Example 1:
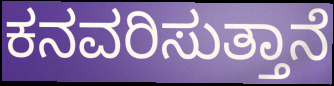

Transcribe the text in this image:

ಕನವರಿಸುತ್ತಾನೆ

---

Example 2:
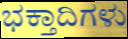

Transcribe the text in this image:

ಭಕ್ತಾದಿಗಳು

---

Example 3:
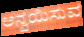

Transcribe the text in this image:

ಅನ್ವಯಿಸುವ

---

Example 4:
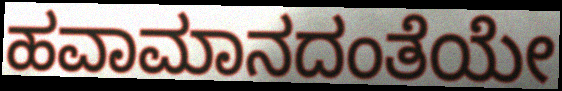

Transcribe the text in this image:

ಹವಾಮಾನದಂತೆಯೇ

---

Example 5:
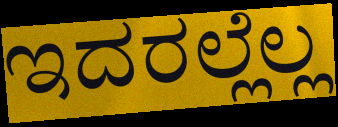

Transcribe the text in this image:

ಇದರಲ್ಲೆಲ್ಲ